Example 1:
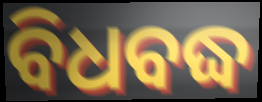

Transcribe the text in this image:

ବିଧବଦ୍ଧ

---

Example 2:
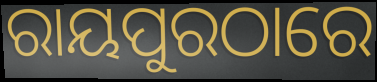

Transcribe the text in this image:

ରାୟପୁରଠାରେ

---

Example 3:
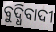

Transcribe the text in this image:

ବୁଦ୍ଧିବାଦୀ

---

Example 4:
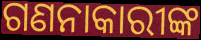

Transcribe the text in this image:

ଗଣନାକାରୀଙ୍କ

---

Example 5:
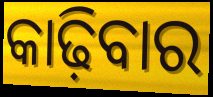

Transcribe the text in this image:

କାଢ଼ିବାର